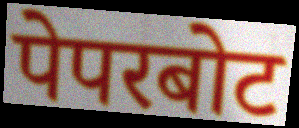
पेपरबोट